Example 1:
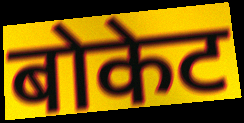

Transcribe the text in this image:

बोकेट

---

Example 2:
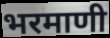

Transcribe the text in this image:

भरमाणी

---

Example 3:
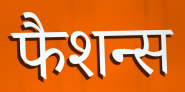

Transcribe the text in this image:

फैशन्स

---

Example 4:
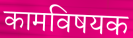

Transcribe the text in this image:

कामविषयक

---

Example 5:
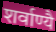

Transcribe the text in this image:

शर्वाण्यै